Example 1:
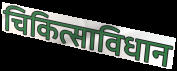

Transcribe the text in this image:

चिकित्साविधान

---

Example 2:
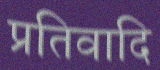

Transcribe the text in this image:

प्रतिवादि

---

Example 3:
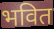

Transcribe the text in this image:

भवित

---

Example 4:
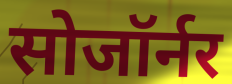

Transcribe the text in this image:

सोजॉर्नर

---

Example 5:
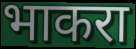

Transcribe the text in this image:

भाकरा